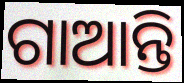
ଗାଆନ୍ତି